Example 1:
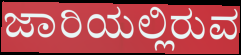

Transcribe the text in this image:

ಜಾರಿಯಲ್ಲಿರುವ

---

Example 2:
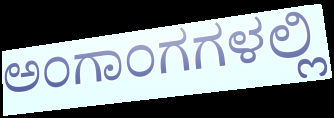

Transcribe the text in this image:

ಅಂಗಾಂಗಗಳಲ್ಲಿ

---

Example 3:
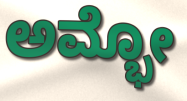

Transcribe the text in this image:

ಅಮ್ಭೋ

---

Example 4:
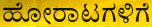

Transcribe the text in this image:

ಹೋರಾಟಗಳಿಗೆ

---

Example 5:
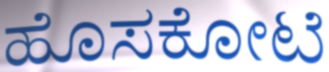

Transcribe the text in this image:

ಹೊಸಕೋಟೆ